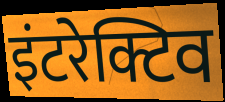
इंटरेक्टिव